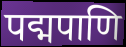
पद्मपाणि